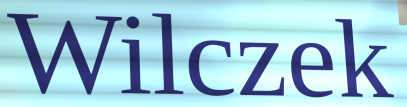
Wilczek